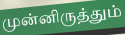
முன்னிருத்தும்